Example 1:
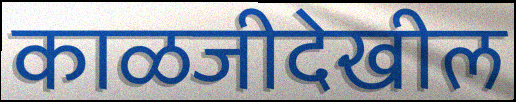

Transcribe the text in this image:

काळजीदेखील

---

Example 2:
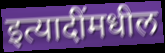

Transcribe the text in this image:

इत्यादींमधील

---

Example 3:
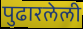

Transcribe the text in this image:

पुढारलेली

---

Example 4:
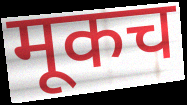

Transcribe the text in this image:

मूकच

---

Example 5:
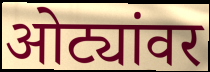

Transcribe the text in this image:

ओट्यांवर